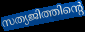
സത്യജിത്തിന്റെ